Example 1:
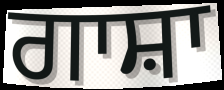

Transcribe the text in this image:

ਗਾਸ਼ਾ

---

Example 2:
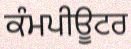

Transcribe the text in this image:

ਕੰਮਪੀਊਟਰ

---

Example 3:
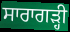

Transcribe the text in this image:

ਸਾਰਾਗੜ੍ਹੀ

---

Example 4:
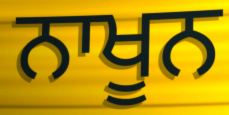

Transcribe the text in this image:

ਨਾਖੂਨ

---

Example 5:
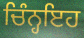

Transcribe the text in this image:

ਚਿੰਨ੍ਹਇਹ